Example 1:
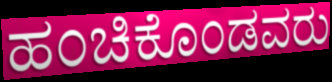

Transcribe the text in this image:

ಹಂಚಿಕೊಂಡವರು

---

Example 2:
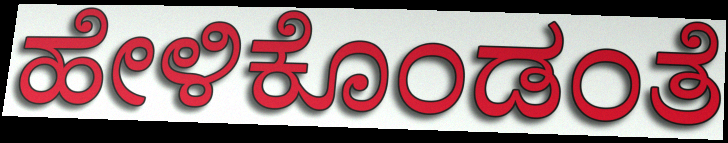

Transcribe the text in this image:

ಹೇಳಿಕೊಂಡಂತೆ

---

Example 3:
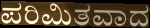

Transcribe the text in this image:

ಪರಿಮಿತವಾದ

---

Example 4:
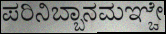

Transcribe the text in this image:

ಪರಿನಿಬ್ಬಾನಮಞ್ಚೇ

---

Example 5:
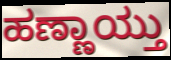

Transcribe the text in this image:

ಹಣ್ಣಾಯ್ತು